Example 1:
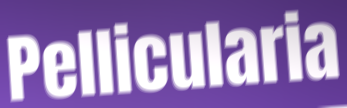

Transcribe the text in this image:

Pellicularia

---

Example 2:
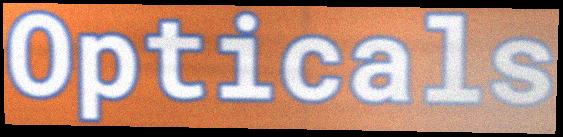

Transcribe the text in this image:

Opticals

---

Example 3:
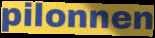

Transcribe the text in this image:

pilonnen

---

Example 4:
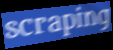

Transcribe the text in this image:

scraping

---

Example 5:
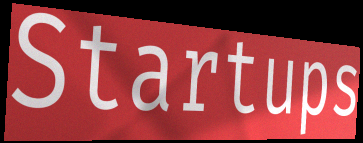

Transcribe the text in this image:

Startups